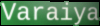
Varaiya